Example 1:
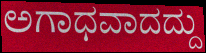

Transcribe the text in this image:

ಅಗಾಧವಾದದ್ದು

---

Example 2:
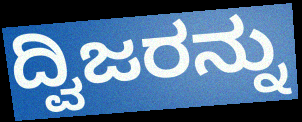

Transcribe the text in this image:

ದ್ವಿಜರನ್ನು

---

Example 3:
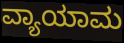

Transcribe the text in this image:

ವ್ಯಾಯಾಮ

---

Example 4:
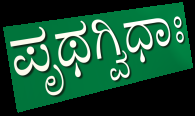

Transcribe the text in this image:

ಪೃಥಗ್ವಿಧಾಃ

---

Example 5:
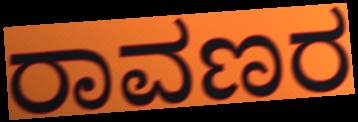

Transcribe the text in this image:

ರಾವಣರ